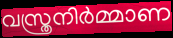
വസ്ത്രനിർമ്മാണ